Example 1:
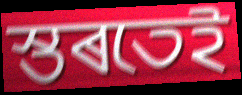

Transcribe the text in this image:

স্তৰতেই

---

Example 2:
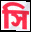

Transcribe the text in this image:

সি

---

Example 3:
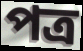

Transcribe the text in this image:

পত্ৰ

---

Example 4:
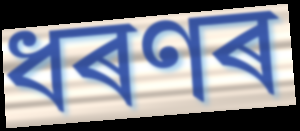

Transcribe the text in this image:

ধৰণৰ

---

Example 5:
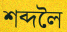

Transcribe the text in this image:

শব্দলৈ